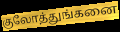
குலோத்துங்கனை